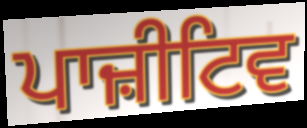
ਪਾਜ਼ੀਟਿਵ